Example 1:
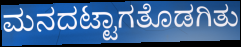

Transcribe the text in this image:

ಮನದಟ್ಟಾಗತೊಡಗಿತು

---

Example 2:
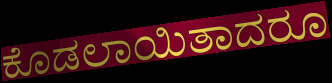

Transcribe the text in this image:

ಕೊಡಲಾಯಿತಾದರೂ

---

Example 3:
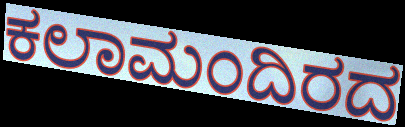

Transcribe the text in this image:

ಕಲಾಮಂದಿರದ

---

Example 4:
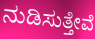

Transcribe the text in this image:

ನುಡಿಸುತ್ತೇವೆ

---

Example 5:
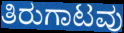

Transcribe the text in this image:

ತಿರುಗಾಟವು